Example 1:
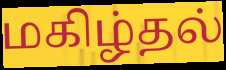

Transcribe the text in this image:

மகிழ்தல்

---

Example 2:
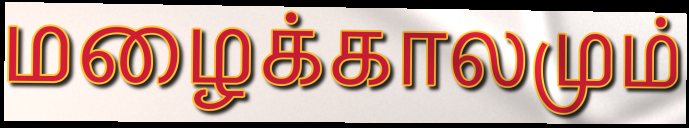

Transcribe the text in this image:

மழைக்காலமும்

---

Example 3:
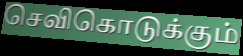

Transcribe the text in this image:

செவிகொடுக்கும்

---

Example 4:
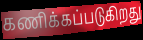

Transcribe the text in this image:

கணிக்கப்படுகிறது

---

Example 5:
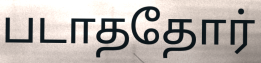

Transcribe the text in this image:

படாததோர்